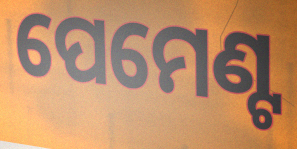
ପେମେଣ୍ଟ